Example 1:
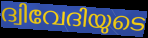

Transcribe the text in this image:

ദ്വിവേദിയുടെ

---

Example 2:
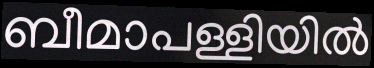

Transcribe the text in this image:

ബീമാപള്ളിയിൽ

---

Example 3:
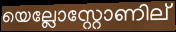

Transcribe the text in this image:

യെല്ലോസ്റ്റോണില്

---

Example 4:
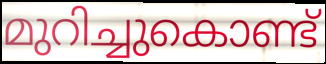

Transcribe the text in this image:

മുറിച്ചുകൊണ്ട്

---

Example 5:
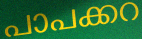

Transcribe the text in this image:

പാപക്കറ